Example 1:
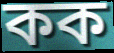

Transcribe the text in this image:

কক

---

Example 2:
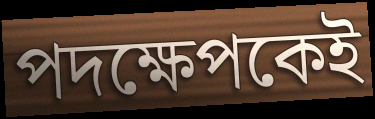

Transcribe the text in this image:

পদক্ষেপকেই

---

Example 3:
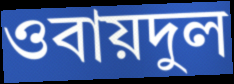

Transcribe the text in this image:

ওবায়দুল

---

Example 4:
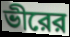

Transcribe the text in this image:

ভীরের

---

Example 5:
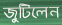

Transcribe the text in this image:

জুটিলেন